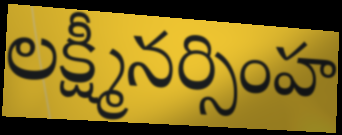
లక్ష్మీనర్సింహ